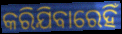
କରିଯିବାରେହିଁ